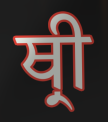
ਥ੍ਰੀ